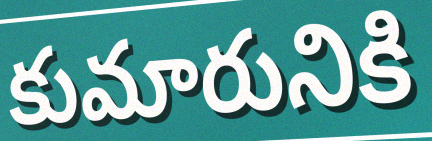
కుమారునికి